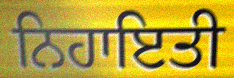
ਨਿਹਾਇਤੀ